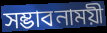
সম্ভাবনাময়ী